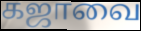
கஜாவை